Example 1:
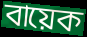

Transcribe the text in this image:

বায়েক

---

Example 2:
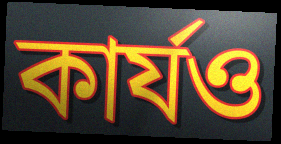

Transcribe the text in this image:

কাৰ্যও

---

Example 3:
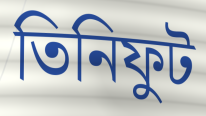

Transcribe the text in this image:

তিনিফুট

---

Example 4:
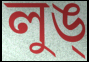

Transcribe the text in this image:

লুঙ্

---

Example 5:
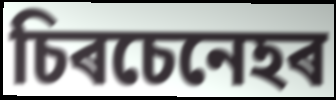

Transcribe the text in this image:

চিৰচেনেহৰ